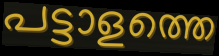
പട്ടാളത്തെ